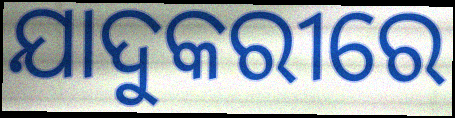
ଯାଦୁକରୀରେ